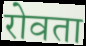
रोवता